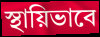
স্থায়িভাবে